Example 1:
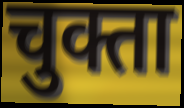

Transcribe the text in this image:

चुक्ता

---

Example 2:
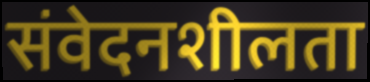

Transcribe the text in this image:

संवेदनशीलता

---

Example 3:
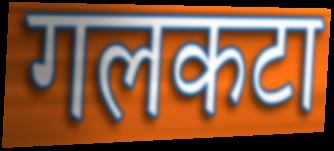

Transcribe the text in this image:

गलकटा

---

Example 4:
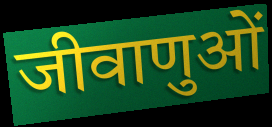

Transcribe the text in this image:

जीवाणुओं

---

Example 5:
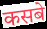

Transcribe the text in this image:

कसबे